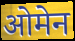
ओमेन